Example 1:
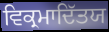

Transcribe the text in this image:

ਵਿਕ੍ਰਮਾਦਿੱਤਯ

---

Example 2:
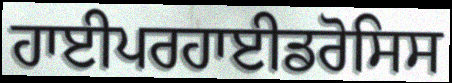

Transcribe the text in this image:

ਹਾਈਪਰਹਾਈਡਰੋਸਿਸ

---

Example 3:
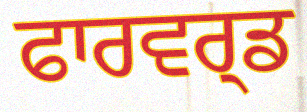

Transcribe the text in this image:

ਫਾਰਵਰ੍ਡ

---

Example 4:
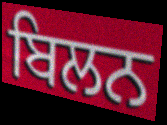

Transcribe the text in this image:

ਬਿਲਨ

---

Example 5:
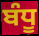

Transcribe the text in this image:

ਬੰਧੂ